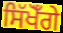
ਸਿੱਖੋਁਗੇ